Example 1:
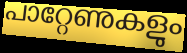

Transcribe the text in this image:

പാറ്റേണുകളും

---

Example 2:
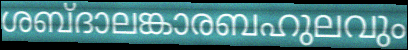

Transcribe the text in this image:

ശബ്ദാലങ്കാരബഹുലവും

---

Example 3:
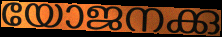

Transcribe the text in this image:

യോജനക്കു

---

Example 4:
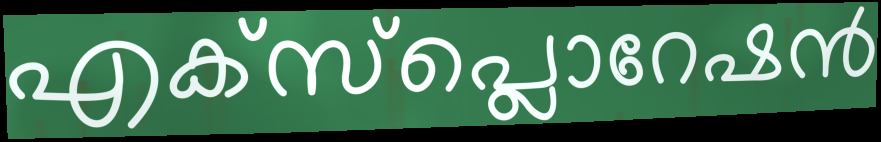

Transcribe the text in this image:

എക്സ്പ്ലൊറേഷൻ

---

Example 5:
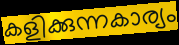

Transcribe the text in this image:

കളിക്കുന്നകാര്യം